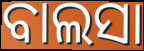
ବାଲସା